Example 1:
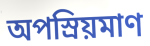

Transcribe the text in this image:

অপস্রিয়মাণ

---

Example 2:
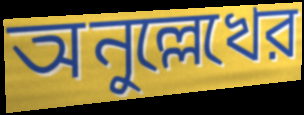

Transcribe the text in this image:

অনুল্লেখের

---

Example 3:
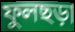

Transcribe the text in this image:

ফুলছড়া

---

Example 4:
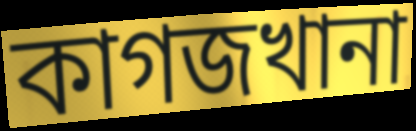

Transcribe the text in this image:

কাগজখানা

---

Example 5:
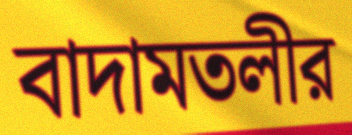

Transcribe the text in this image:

বাদামতলীর